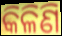
କିଳିଣି